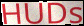
HUDs